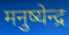
मनुष्येन्द्र